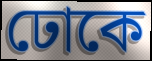
ঢোকে